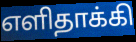
எளிதாக்கி